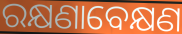
ରକ୍ଷଣାବେକ୍ଷଣ